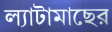
ল্যাটামাছের